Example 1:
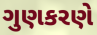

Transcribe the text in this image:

ગુણકરણે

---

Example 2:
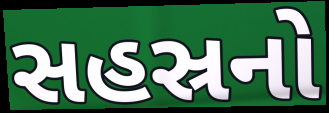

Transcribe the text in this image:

સહસ્રનો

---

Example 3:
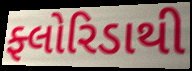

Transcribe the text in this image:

ફ્લોરિડાથી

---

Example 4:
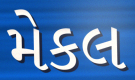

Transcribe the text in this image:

મેકલ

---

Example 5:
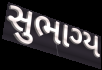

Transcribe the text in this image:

સુભાગ્ય